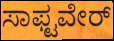
ಸಾಫ್ಟವೇರ್